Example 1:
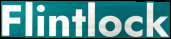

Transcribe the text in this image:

Flintlock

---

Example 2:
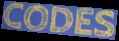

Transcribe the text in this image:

CODES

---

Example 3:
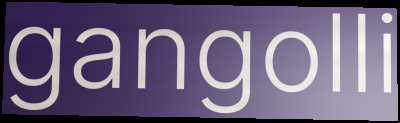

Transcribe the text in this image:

gangolli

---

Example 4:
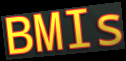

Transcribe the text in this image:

BMIs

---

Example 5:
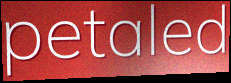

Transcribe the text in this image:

petaled